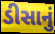
ડીસાનું